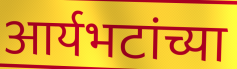
आर्यभटांच्या